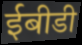
ईबीडी